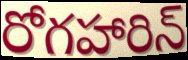
రోగహారిన్